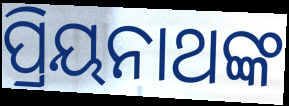
ପ୍ରିୟନାଥଙ୍କ